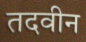
तदवीन